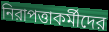
নিরাপত্তাকর্মীদের